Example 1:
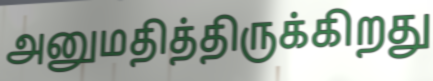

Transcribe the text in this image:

அனுமதித்திருக்கிறது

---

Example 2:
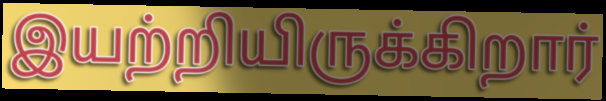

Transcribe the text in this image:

இயற்றியிருக்கிறார்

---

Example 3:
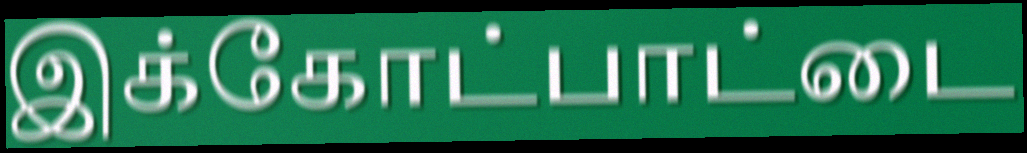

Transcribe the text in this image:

இக்கோட்பாட்டை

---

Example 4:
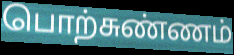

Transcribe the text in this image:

பொற்சுண்ணம்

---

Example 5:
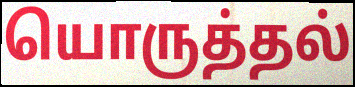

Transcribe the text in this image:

யொருத்தல்